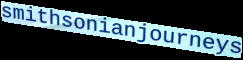
smithsonianjourneys